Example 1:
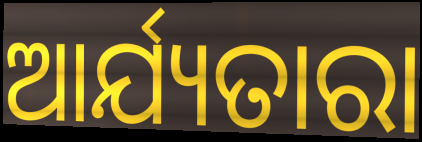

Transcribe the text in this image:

ଆର୍ଯ୍ୟତାରା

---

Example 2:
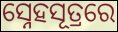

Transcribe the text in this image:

ସ୍ନେହସୂତ୍ରରେ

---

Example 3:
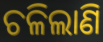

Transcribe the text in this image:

ଚଳିଲାଣି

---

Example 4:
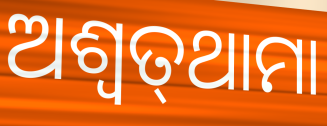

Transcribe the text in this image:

ଅଶ୍ଵତ୍‌ଥାମା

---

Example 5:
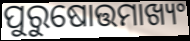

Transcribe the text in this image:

ପୁରୁଷୋତ୍ତମାଖ୍ୟଂ